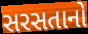
સરસતાનો